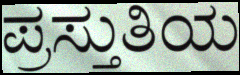
ಪ್ರಸ್ತುತಿಯ